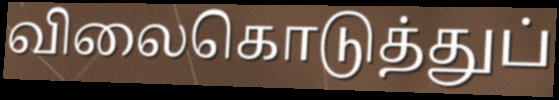
விலைகொடுத்துப்